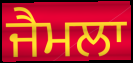
ਜੈਮਲਾ